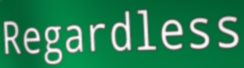
Regardless